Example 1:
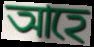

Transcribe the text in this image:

আহে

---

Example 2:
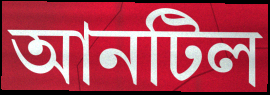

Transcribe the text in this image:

আনটিল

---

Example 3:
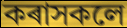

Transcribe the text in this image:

কৰাসকলে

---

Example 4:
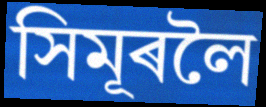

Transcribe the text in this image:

সিমূৰলৈ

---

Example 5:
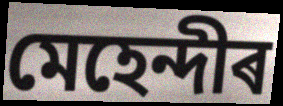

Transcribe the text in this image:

মেহেন্দীৰ